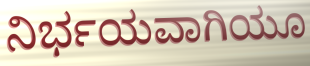
ನಿರ್ಭಯವಾಗಿಯೂ